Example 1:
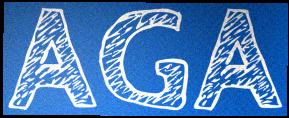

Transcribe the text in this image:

AGA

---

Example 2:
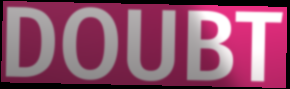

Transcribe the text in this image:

DOUBT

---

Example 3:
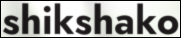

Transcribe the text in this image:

shikshako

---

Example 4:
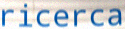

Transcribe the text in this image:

ricerca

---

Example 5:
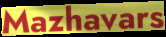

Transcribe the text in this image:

Mazhavars